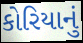
કોરિયાનું